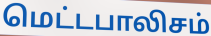
மெட்டபாலிசம்